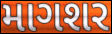
માગશર